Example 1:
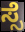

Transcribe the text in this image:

ಸ್ಸೆ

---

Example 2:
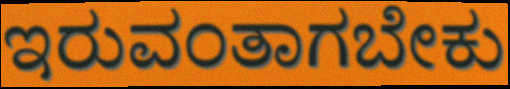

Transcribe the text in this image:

ಇರುವಂತಾಗಬೇಕು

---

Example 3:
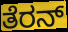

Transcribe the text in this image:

ತೆರನ್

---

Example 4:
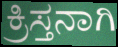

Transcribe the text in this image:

ಕ್ರಿಸ್ತನಾಗಿ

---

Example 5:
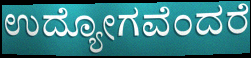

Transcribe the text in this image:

ಉದ್ಯೋಗವೆಂದರೆ